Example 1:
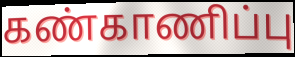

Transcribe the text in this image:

கண்காணிப்பு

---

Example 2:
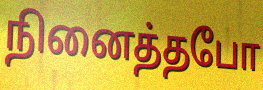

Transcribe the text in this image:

நினைத்தபோ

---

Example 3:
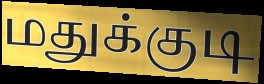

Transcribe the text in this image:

மதுக்குடி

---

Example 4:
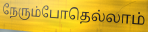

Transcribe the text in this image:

நேரும்போதெல்லாம்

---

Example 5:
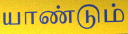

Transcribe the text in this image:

யாண்டும்